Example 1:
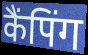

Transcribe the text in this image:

कैंपिंग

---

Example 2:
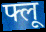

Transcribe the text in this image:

फ्लू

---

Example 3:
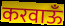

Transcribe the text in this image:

करवाऊँ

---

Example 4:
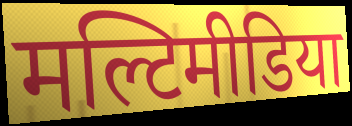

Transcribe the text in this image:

मल्टिमीडिया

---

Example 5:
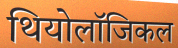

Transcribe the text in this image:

थियोलॉजिकल